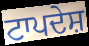
ਟਾਪਦੇਸ਼